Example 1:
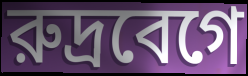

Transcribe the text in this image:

রুদ্রবেগে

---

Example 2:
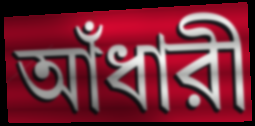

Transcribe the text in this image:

আঁধারী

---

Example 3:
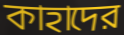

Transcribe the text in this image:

কাহাদের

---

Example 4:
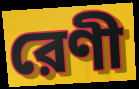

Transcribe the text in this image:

রেণী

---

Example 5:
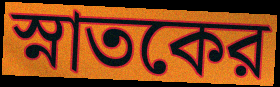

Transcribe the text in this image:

স্নাতকের